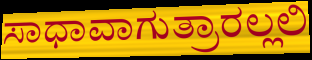
ಸಾಧಾವಾಗುತ್ರಾರಲ್ಲಲಿ